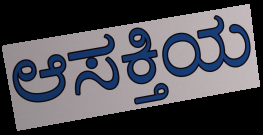
ಆಸಕ್ತಿಯ